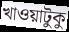
খাওয়াটুকু